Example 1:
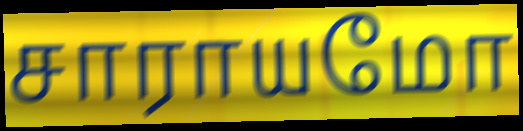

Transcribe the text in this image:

சாராயமோ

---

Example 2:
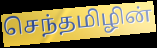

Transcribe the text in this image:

செந்தமிழின்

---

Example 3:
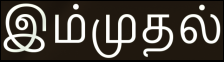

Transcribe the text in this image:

இம்முதல்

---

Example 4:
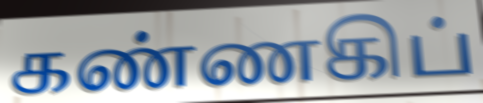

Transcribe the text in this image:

கண்ணகிப்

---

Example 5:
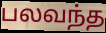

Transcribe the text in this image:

பலவந்த